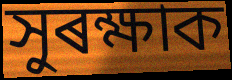
সুৰক্ষাক